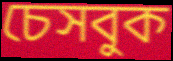
চেসবুক